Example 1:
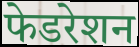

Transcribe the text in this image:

फेडरेशन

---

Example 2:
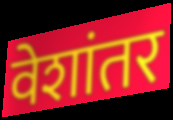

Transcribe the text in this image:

वेशांतर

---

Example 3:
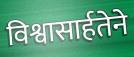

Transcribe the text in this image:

विश्वासार्हतेने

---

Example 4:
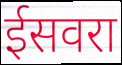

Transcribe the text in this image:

ईसवरा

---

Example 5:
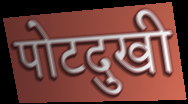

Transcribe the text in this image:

पोटदुखी